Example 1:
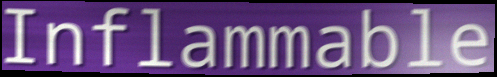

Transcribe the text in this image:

Inflammable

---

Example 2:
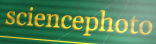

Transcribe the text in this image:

sciencephoto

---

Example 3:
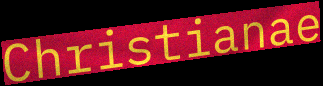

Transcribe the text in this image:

Christianae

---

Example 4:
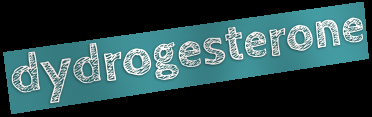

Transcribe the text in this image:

dydrogesterone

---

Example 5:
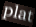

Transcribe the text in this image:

plat